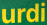
urdi